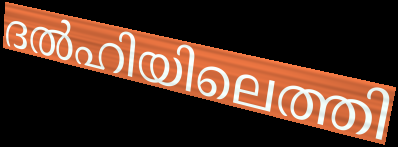
ദൽഹിയിലെത്തി